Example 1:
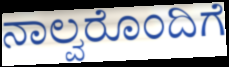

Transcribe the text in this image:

ನಾಲ್ವರೊಂದಿಗೆ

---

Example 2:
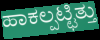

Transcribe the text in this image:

ಹಾಕಲ್ಪಟ್ಟಿತ್ತು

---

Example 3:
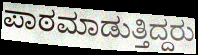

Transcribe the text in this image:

ಪಾಠಮಾಡುತ್ತಿದ್ದರು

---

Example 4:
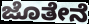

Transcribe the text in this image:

ಜೊತೇನೆ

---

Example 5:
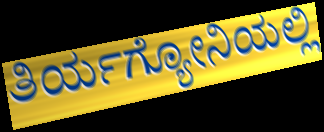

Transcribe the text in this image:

ತಿರ್ಯಗ್ಯೋನಿಯಲ್ಲಿ